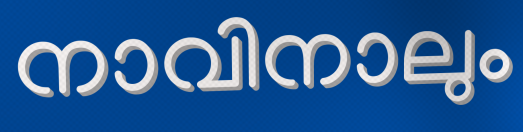
നാവിനാലും